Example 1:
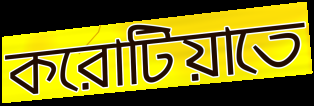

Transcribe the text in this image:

করোটিয়াতে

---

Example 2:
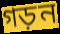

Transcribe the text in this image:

গড়ন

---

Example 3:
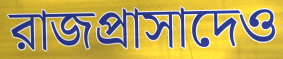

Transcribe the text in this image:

রাজপ্রাসাদেও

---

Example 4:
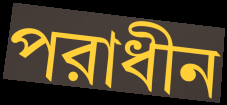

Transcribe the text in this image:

পরাধীন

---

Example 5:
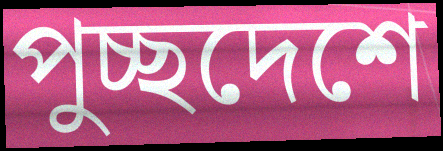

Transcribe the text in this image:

পুচ্ছদেশে